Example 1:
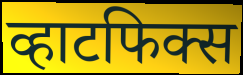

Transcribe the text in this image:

व्हाटफिक्स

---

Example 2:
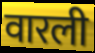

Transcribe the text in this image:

वारली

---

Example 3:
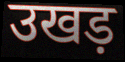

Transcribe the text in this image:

उखड़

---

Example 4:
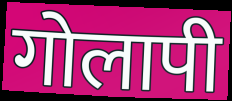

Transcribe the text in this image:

गोलापी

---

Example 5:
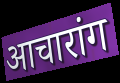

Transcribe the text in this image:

आचारांग